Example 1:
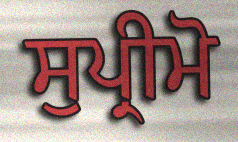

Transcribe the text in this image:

ਸੁਪ੍ਰੀਮੋ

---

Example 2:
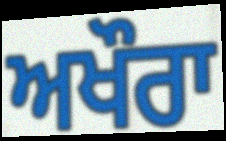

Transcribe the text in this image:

ਅਖੌਰਾ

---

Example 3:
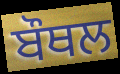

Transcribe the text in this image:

ਬੌਥਲ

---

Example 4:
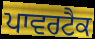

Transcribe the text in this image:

ਪਾਵਰਟੈਕ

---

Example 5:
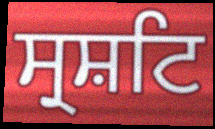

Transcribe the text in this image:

ਸ੍ਰਸ਼ਟਿ